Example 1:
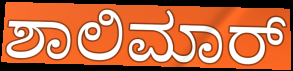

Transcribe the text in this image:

ಶಾಲಿಮಾರ್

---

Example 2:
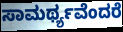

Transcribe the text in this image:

ಸಾಮರ್ಥ್ಯವೆಂದರೆ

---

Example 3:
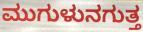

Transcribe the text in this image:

ಮುಗುಳುನಗುತ್ತ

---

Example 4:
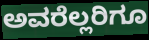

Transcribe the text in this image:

ಅವರೆಲ್ಲರಿಗೂ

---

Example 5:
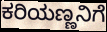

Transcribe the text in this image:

ಕರಿಯಣ್ಣನಿಗೆ